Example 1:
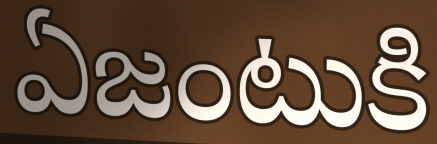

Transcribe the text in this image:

ఏజంటుకి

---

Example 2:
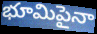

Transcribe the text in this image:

భూమిపైనా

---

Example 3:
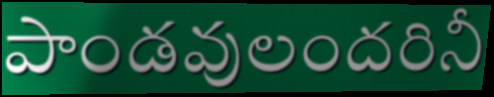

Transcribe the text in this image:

పాండవులందరినీ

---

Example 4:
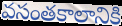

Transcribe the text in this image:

వసంతకాలానికి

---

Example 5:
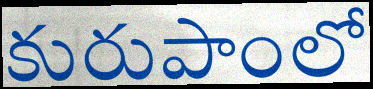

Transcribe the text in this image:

కురుపాంలో